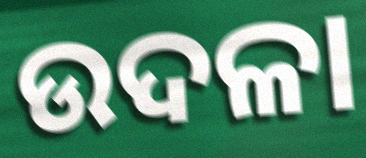
ଉଦଳା